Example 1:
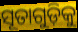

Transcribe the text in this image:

ସୂତାଗୁଡ଼ିକୁ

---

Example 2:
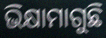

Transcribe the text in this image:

ଭିକ୍ଷାମାଗୁଛି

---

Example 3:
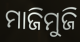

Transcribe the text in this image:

ମାଜିମୁଜି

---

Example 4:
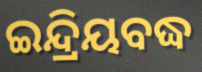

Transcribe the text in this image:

ଇନ୍ଦ୍ରିୟବଦ୍ଧ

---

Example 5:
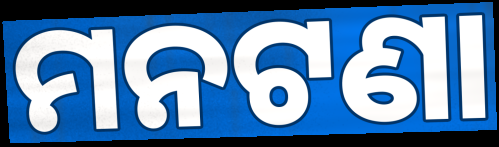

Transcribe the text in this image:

ମନଟଣା